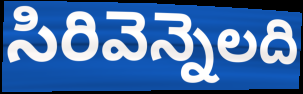
సిరివెన్నెలది